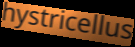
hystricellus